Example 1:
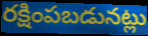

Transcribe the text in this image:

రక్షింపబడునట్లు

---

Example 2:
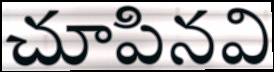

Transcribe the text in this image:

చూపినవి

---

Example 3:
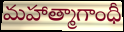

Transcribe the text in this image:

మహాత్మాగాంధీ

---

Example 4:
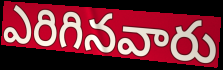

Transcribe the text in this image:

ఎరిగినవారు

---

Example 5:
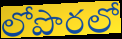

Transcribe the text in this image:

లోపొరలో